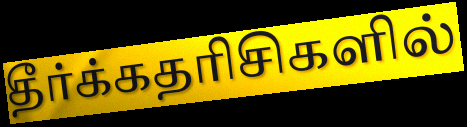
தீர்க்கதரிசிகளில்